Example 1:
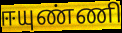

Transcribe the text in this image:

ஈயுண்ணி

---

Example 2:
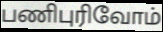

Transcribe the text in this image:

பணிபுரிவோம்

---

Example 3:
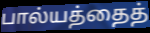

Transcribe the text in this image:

பால்யத்தைத்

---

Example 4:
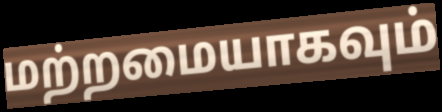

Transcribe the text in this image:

மற்றமையாகவும்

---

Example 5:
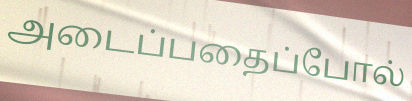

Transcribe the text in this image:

அடைப்பதைப்போல்